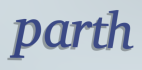
parth